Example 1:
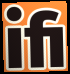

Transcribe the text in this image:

ifi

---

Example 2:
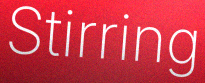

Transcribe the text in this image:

Stirring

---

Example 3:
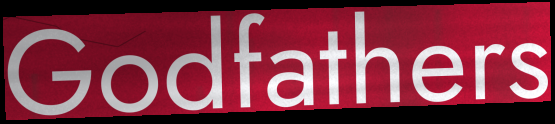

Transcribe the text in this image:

Godfathers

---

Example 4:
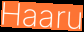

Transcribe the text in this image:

Haaru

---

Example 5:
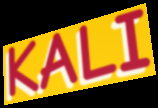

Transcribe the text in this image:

KALI